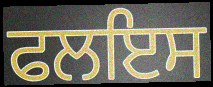
ਫਲਇਸ